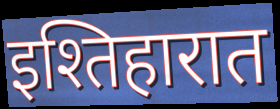
इश्तिहारात